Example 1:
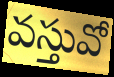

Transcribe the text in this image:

వస్తువో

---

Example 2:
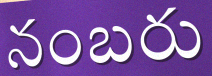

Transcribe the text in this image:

నంబరు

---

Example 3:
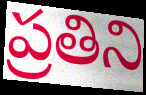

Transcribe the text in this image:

ప్రతిని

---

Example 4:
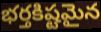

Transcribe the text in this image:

భర్తకిష్టమైన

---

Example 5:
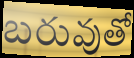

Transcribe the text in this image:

బరువుతో